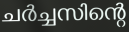
ചർച്ചസിന്റെ